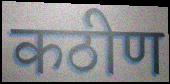
कठीण